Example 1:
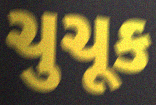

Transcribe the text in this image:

ચુચૂક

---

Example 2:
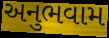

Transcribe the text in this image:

અનુભવામ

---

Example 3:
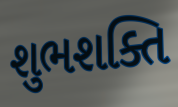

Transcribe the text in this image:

શુભશક્તિ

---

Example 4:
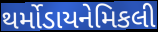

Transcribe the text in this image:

થર્મોડાયનેમિકલી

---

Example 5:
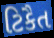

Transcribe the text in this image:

ટિકૈત